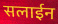
सलाईन